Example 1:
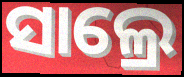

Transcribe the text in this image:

ସାଲ୍ରେ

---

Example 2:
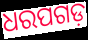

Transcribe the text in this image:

ଧରପଗଡ଼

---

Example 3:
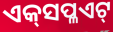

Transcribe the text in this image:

ଏକ୍‍ସପ୍ଳଏଟ୍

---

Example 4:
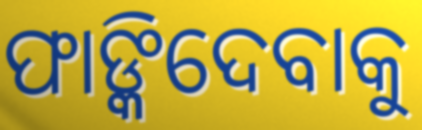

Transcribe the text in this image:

ଫାଙ୍କିଦେବାକୁ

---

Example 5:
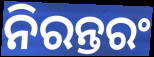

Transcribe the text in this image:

ନିରନ୍ତରଂ